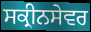
ਸਕ੍ਰੀਨਸੇਵਰ